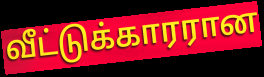
வீட்டுக்காரரான